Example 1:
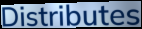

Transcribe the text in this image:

Distributes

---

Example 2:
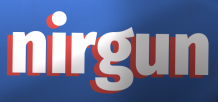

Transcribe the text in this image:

nirgun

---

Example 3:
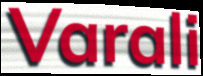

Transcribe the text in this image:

Varali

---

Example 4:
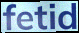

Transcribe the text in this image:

fetid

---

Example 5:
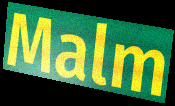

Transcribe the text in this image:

Malm